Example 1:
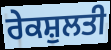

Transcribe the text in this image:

ਰੇਕਸ਼ੁਲਤੀ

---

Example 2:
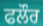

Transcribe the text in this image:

ਫਲੌਰ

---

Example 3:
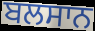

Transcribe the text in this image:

ਬਲਸਾਨ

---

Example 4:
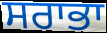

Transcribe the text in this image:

ਸਰਾਭਾ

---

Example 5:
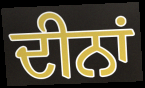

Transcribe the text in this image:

ਦੀਨਾਂ